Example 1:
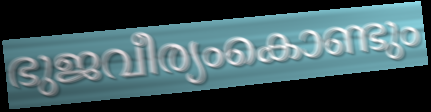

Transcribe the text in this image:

ഭുജവീര്യംകൊണ്ടും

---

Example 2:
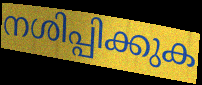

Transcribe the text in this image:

നശിപ്പിക്കുക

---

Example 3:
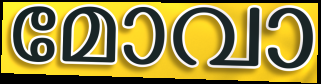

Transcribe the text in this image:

മോവാ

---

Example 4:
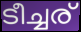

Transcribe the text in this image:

ടീച്ചര്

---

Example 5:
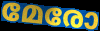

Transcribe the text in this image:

മേരോ